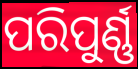
ପରିପୁର୍ଣ୍ଣ